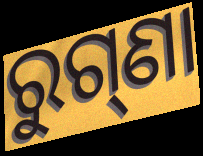
ରୁଗ୍‌ଣା